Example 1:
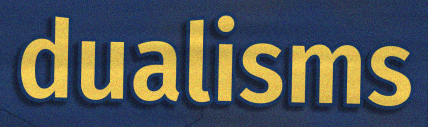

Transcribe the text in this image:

dualisms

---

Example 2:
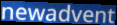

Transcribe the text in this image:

newadvent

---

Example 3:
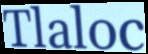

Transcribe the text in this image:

Tlaloc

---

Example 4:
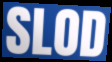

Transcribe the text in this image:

SLOD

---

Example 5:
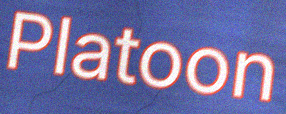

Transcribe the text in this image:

Platoon